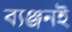
ব্যঞ্জনই